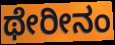
ಥೇರೀನಂ